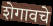
शेगावचे